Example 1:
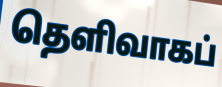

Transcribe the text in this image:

தெளிவாகப்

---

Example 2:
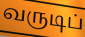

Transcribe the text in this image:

வருடிப்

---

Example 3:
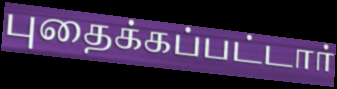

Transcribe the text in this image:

புதைக்கப்பட்டார்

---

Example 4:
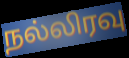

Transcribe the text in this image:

நல்லிரவு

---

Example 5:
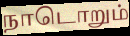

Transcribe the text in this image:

நாடொறும்